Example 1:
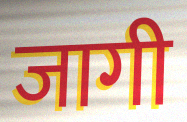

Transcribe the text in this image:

जागी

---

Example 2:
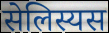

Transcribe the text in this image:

सेलिस्यस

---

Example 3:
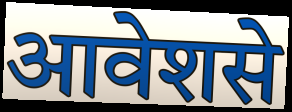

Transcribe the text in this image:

आवेशसे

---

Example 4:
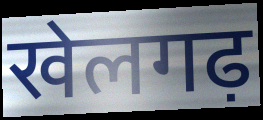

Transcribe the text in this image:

खेलगढ़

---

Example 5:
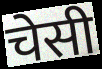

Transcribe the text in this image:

चेसी